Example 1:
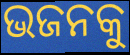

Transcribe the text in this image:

ଭଜନକୁ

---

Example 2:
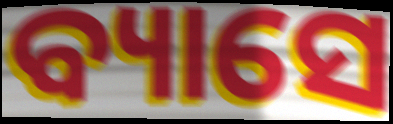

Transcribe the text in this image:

ବ୍ୟାସେ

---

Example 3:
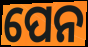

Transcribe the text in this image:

ପେନ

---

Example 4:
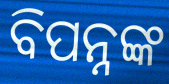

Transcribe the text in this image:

ବିପନ୍ନଙ୍କ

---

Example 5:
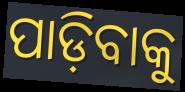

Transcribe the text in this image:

ପାଡ଼ିବାକୁ